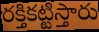
రక్తికట్టిస్తారు